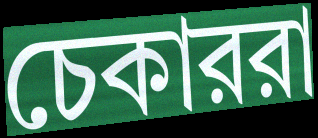
চেকাররা